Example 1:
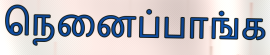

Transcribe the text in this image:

நெனைப்பாங்க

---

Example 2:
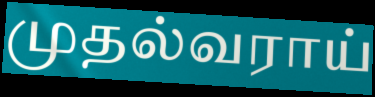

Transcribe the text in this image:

முதல்வராய்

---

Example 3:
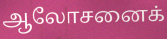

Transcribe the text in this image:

ஆலோசனைக்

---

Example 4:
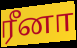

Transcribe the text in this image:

ரீனா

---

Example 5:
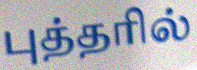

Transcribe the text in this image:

புத்தரில்